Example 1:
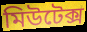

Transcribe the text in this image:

মিউটেক্স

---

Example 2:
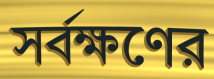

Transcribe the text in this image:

সর্বক্ষণের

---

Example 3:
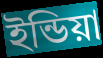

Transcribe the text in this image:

ইন্ডিয়া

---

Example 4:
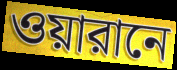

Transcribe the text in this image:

ওয়ারানে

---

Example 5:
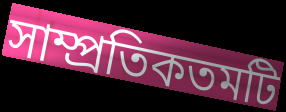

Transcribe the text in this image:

সাম্প্রতিকতমটি